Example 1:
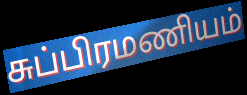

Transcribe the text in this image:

சுப்பிரமணியம்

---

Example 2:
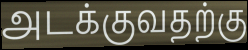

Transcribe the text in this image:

அடக்குவதற்கு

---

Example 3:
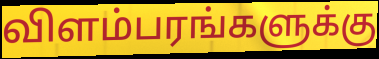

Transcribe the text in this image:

விளம்பரங்களுக்கு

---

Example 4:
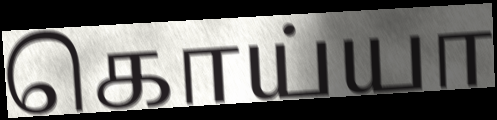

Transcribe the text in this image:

கொய்யா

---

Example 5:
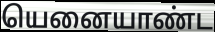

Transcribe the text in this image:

யெனையாண்ட